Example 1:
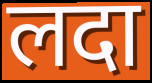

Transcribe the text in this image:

लदा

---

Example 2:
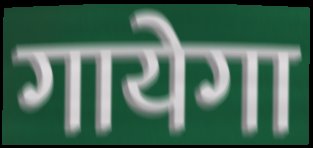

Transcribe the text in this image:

गायेगा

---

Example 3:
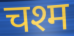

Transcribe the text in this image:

चश्म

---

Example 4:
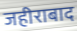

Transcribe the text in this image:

जहीराबाद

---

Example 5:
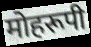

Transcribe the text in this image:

मोहरूपी